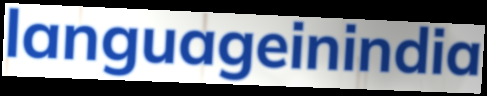
languageinindia